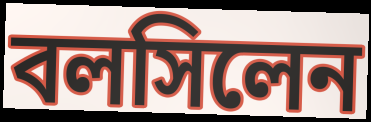
বলসিলেন